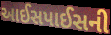
આઈસપાઈસની